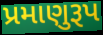
પ્રમાણુરૂપ